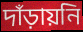
দাঁড়ায়নি